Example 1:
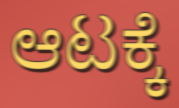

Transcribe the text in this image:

ಆಟಕ್ಕೆ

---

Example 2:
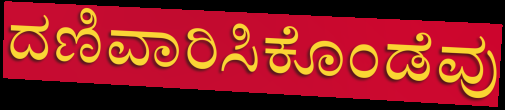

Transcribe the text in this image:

ದಣಿವಾರಿಸಿಕೊಂಡೆವು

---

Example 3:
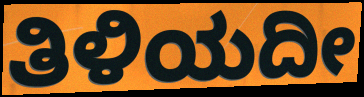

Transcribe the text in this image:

ತಿಳಿಯದೀ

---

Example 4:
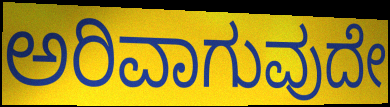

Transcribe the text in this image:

ಅರಿವಾಗುವುದೇ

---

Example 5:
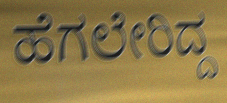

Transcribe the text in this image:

ಹೆಗಲೇರಿದ್ದ